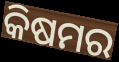
କିଷମର